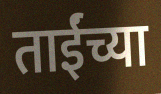
ताईंच्या